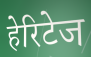
हेरिटेज